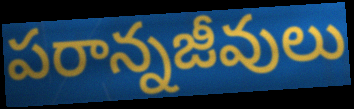
పరాన్నజీవులు